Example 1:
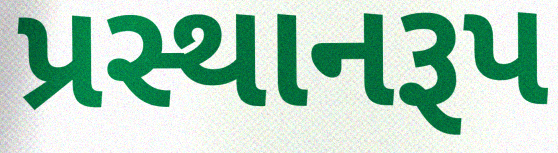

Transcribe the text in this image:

પ્રસ્થાનરૂપ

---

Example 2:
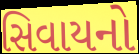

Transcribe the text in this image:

સિવાયનો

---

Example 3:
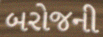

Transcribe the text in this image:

બરોજની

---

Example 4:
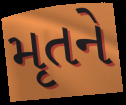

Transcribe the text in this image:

મૃતને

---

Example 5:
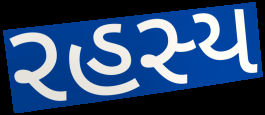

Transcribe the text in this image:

રહસ્ય